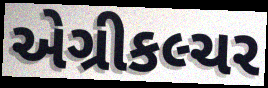
એગ્રીકલ્ચર